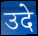
उदे